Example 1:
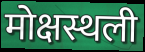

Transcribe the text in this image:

मोक्षस्थली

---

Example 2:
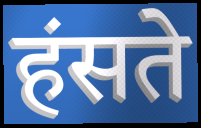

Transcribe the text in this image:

हंसते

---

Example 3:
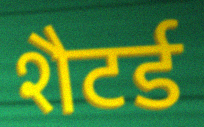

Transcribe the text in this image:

शैटर्ड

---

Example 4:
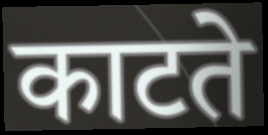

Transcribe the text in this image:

काटते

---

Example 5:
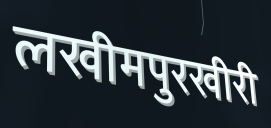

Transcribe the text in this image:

लखीमपुरखीरी